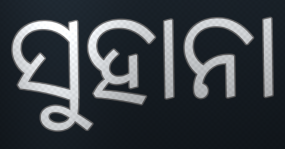
ସୁହାନା